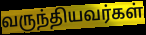
வருந்தியவர்கள்